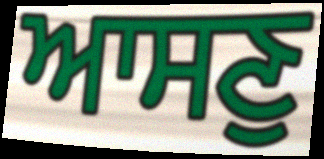
ਆਸਣੁ